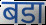
बडा